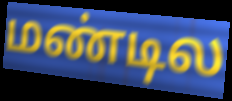
மண்டில